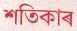
শতিকাৰ